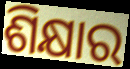
ଶିକ୍ଷାର